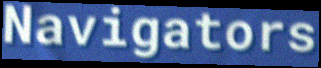
Navigators